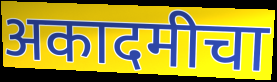
अकादमीचा